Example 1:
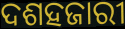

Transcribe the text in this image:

ଦଶହଜାରୀ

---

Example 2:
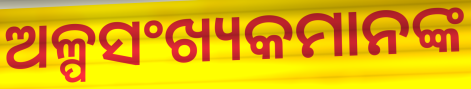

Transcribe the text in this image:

ଅଳ୍ପସଂଖ୍ୟକମାନଙ୍କ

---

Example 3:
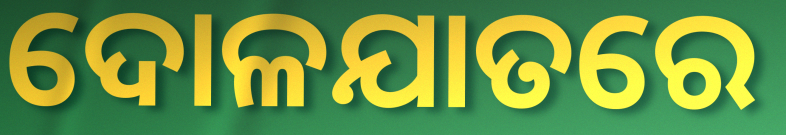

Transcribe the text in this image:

ଦୋଳଯାତରେ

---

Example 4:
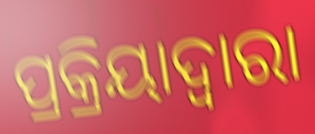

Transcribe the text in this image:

ପ୍ରକ୍ରିୟାଦ୍ଵାରା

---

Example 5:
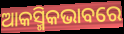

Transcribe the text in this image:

ଆକସ୍ମିକଭାବରେ